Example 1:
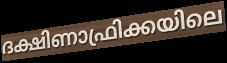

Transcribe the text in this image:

ദക്ഷിണാഫ്രിക്കയിലെ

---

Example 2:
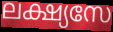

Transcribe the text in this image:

ലക്ഷ്യസേ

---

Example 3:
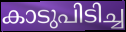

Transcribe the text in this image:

കാടുപിടിച്ച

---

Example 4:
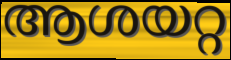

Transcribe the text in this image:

ആശയറ്റ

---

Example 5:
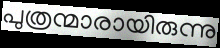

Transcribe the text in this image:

പുത്രന്മാരായിരുന്നു